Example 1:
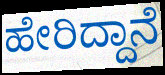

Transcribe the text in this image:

ಹೇರಿದ್ದಾನೆ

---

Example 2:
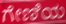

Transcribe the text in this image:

ಗೇಣಿಯ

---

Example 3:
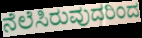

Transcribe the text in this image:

ನೆಲೆಸಿರುವುದರಿಂದ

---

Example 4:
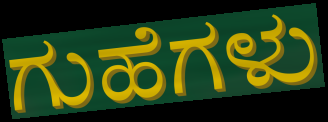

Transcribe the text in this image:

ಗುಹೆಗಳು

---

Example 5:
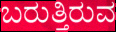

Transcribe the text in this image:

ಬರುತ್ತಿರುವ